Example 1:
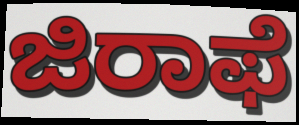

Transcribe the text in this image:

ಜಿರಾಫೆ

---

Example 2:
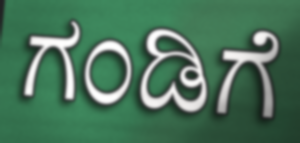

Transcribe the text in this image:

ಗಂಡಿಗೆ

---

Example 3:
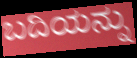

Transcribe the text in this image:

ಬದಿಯನ್ನು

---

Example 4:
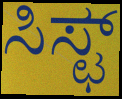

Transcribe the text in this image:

ಸಿಸ್ಟ್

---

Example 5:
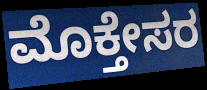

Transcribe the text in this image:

ಮೊಕ್ತೇಸರ